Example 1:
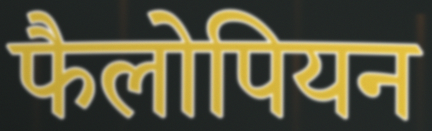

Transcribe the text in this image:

फैलोपियन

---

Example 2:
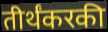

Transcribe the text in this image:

तीर्थंकरकी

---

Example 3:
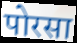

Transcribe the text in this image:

पोरसा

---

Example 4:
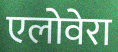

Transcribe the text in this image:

एलोवेरा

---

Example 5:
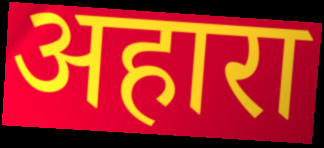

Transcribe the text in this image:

अहारा